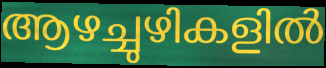
ആഴച്ചുഴികളിൽ